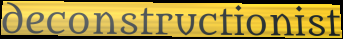
deconstructionist